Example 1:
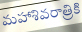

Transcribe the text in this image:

మహాశివరాత్రికి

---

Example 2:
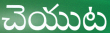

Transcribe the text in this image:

చెయుట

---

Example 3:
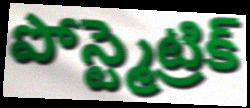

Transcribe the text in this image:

పోస్ట్మెట్రిక్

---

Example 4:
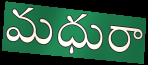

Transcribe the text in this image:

మధురా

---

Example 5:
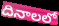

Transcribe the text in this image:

దినాలలో